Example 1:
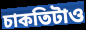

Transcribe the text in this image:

চাকতিটাও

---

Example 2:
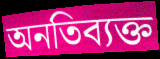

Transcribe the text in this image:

অনতিব্যক্ত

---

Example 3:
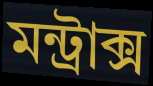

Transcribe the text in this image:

মন্ট্রাক্স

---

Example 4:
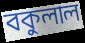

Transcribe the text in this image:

বকুলাল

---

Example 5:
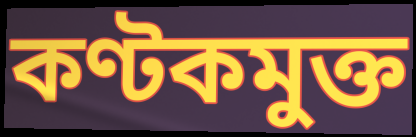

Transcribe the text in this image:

কণ্টকমুক্ত